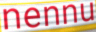
nennu